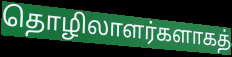
தொழிலாளர்களாகத்